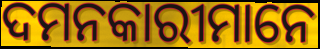
ଦମନକାରୀମାନେ